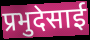
प्रभुदेसाई